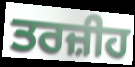
ਤਰਜ਼ੀਹ